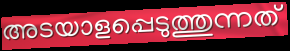
അടയാളപ്പെടുത്തുന്നത്